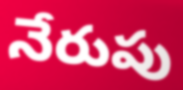
నేరుపు